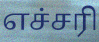
எச்சரி